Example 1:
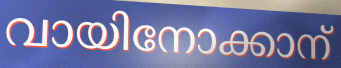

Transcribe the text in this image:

വായിനോക്കാന്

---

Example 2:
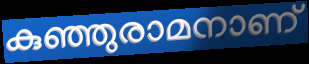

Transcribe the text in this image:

കുഞ്ഞുരാമനാണ്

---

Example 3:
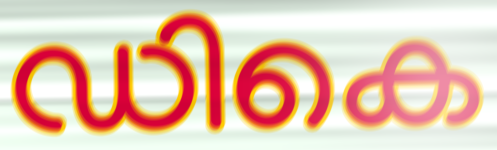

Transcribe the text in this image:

ഡികെ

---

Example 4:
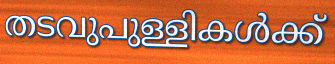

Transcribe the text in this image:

തടവുപുള്ളികൾക്ക്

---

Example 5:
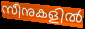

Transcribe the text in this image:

സീനുകളിൽ